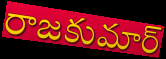
రాజకుమార్